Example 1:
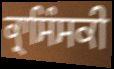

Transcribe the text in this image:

ਕ੍ਰਾਸਿੰਸਕੀ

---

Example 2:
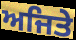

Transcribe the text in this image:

ਅਜਿਤੇ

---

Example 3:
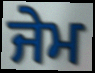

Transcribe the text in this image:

ਜੇਮ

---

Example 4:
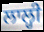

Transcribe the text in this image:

ਲਾਲ੍ਹੀ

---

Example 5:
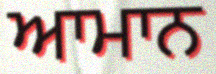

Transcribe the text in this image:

ਆਮਾਨ